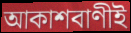
আকাশবাণীই